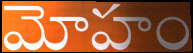
మోహం